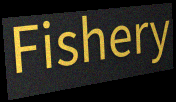
Fishery